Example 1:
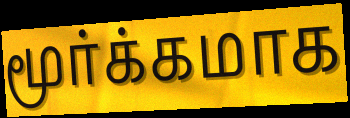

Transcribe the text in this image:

மூர்க்கமாக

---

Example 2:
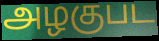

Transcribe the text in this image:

அழகுபட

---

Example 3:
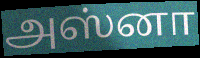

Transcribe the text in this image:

அஸ்னா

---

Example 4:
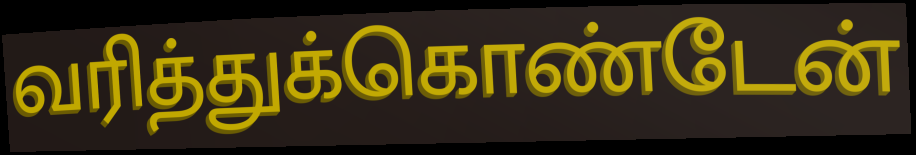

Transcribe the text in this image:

வரித்துக்கொண்டேன்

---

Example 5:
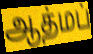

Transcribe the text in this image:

ஆத்மப்